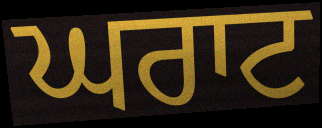
ਘਰਾਟ